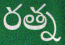
రత్న